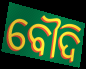
ବୌଦି